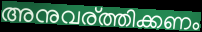
അനുവര്ത്തിക്കണം